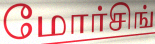
மோர்சிங்